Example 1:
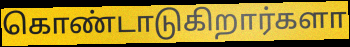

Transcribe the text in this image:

கொண்டாடுகிறார்களா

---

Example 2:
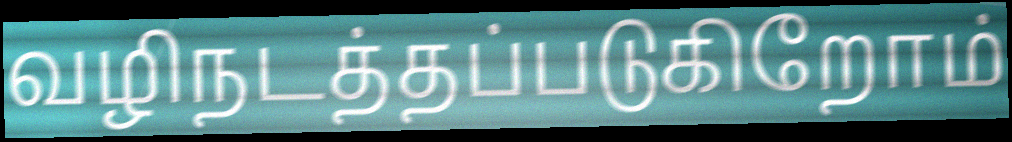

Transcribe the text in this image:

வழிநடத்தப்படுகிறோம்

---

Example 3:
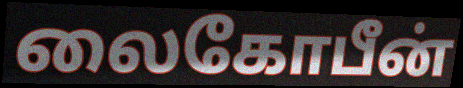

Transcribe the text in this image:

லைகோபீன்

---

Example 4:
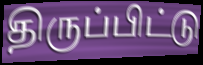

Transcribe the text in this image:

திருப்பிட்டு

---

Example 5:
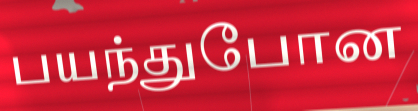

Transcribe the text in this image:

பயந்துபோன